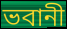
ভবানী